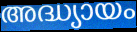
അദ്ധ്യായം